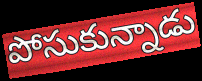
పోసుకున్నాడు